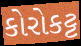
કોરોકટ્ટ